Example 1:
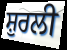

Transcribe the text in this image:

ਸ਼ੁਰਲੀ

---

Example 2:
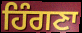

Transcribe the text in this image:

ਹਿੰਗਣਾ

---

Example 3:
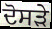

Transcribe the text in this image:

ਦੋਸੜੇ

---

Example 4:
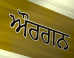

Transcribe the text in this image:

ਔਰਗਨ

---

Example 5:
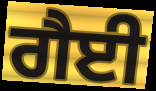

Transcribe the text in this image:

ਗੈਈ